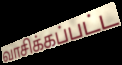
வாசிக்கப்பட்ட